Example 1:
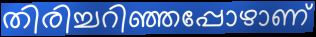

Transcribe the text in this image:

തിരിച്ചറിഞ്ഞപ്പോഴാണ്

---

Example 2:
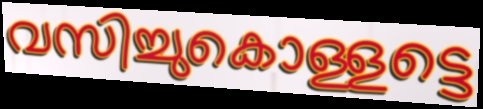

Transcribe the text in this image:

വസിച്ചുകൊള്ളട്ടെ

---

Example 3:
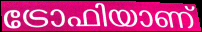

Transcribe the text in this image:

ട്രോഫിയാണ്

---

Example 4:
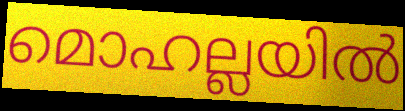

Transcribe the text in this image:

മൊഹല്ലയിൽ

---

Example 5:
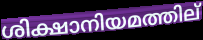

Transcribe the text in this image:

ശിക്ഷാനിയമത്തില്